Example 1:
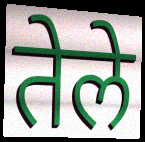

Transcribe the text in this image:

तेले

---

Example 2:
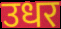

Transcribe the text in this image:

उधर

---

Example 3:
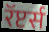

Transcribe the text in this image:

रॅप्टर्स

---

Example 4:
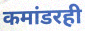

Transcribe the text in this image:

कमांडरही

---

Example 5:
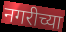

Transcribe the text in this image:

नगरीच्या